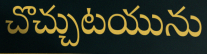
చొచ్చుటయును